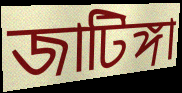
জাটিঙ্গা